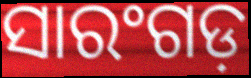
ସାରଂଗଡ଼